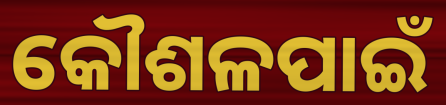
କୌଶଳପାଇଁ